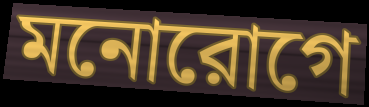
মনোরোগে